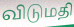
விடுமதி